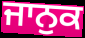
ਜਾਨੁਕ